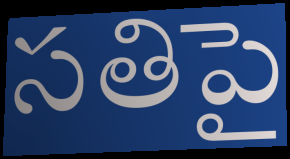
సతిపై